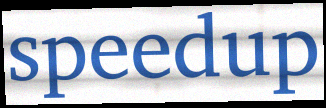
speedup